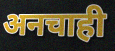
अनचाही